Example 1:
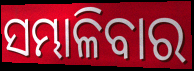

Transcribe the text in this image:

ସମ୍ଭାଳିବାର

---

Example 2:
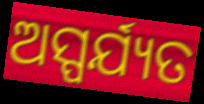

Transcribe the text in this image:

ଅସ୍ପର୍ଯ୍ୟତ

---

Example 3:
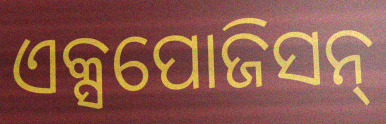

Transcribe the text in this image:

ଏକ୍ସପୋଜିସନ୍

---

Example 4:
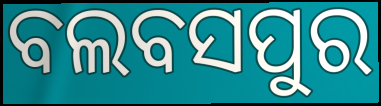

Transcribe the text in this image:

ବଲବସପୁର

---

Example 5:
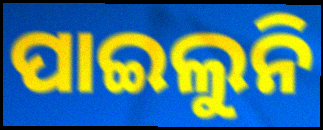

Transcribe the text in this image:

ପାଇଲୁନି